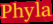
Phyla